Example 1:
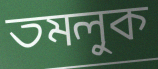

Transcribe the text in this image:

তমলুক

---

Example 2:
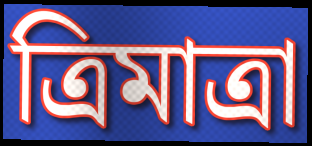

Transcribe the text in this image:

ত্রিমাত্রা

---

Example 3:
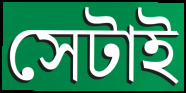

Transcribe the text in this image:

সেটাই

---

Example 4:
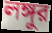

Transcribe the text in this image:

লঙ্গুর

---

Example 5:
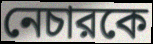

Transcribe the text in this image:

নেচারকে